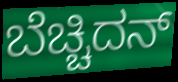
ಬೆಚ್ಚಿದನ್